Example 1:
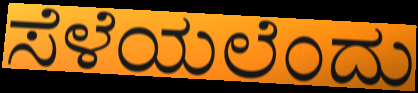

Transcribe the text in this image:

ಸೆಳೆಯಲೆಂದು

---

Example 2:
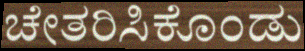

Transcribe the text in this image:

ಚೇತರಿಸಿಕೊಂಡು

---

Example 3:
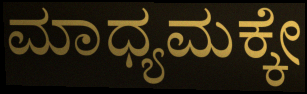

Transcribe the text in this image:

ಮಾಧ್ಯಮಕ್ಕೇ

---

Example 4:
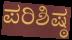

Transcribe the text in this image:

ಪರಿಶಿಷ್ಠ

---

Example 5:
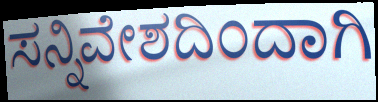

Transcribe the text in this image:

ಸನ್ನಿವೇಶದಿಂದಾಗಿ